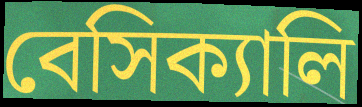
বেসিক্যালি